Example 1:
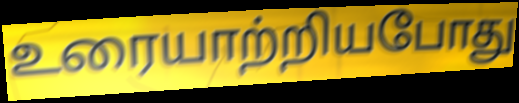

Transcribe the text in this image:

உரையாற்றியபோது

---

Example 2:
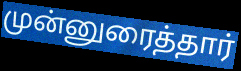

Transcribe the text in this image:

முன்னுரைத்தார்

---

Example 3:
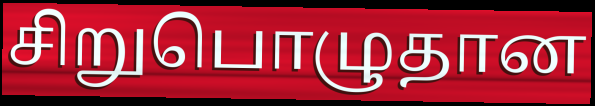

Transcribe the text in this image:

சிறுபொழுதான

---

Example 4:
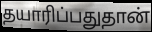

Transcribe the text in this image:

தயாரிப்பதுதான்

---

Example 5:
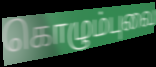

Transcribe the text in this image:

கொழும்புவை